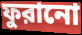
ফুরানো